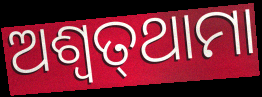
ଅଶ୍ବତ୍‌ଥାମା